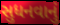
સુધનવાનું